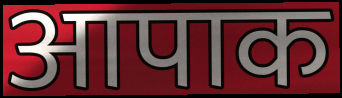
आपाक